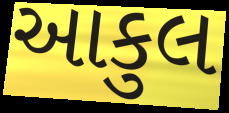
આકુલ